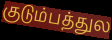
குடும்பத்துல